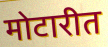
मोटारीत